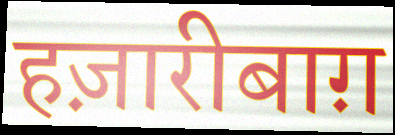
हज़ारीबाग़